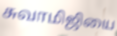
சுவாமிஜியை